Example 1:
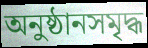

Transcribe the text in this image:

অনুষ্ঠানসমৃদ্ধ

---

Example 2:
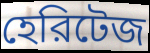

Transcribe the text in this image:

হেরিটেজ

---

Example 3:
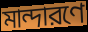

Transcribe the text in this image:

মান্দারণে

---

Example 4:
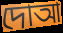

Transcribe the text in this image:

দোআ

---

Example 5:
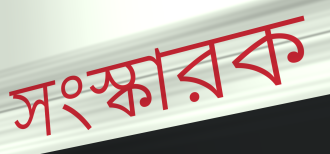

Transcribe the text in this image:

সংস্কারক